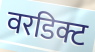
वरडिक्ट